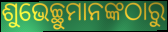
ଶୁଭେଚ୍ଛୁମାନଙ୍କଠାରୁ